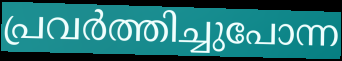
പ്രവർത്തിച്ചുപോന്ന